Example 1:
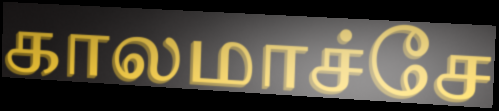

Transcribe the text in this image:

காலமாச்சே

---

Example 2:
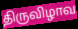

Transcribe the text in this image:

திருவிழாவ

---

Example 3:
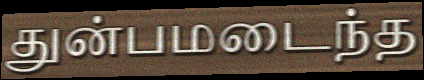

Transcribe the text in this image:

துன்பமடைந்த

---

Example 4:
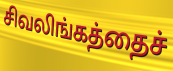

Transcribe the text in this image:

சிவலிங்கத்தைச்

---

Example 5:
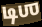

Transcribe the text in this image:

டிஶ